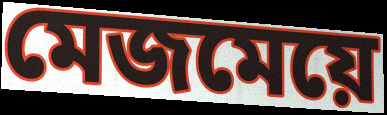
মেজমেয়ে